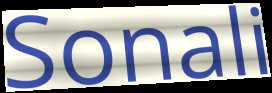
Sonali